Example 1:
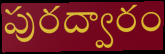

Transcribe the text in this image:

పురద్వారం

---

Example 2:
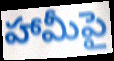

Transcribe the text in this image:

హామీపై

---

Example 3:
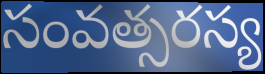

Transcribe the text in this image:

సంవత్సరస్య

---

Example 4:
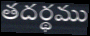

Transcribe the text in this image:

తదర్థము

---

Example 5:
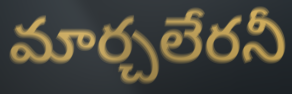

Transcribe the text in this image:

మార్చలేరనీ